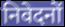
निवेदनों